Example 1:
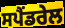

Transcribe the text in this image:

ਸਪੈਂਡਰੇਲ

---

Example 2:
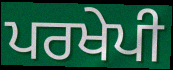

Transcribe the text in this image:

ਪਰਖੇਪੀ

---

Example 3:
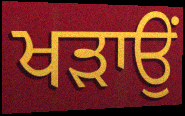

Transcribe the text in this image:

ਖੜਾਉਂ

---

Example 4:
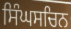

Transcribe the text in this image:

ਸਿੰਘਸਚਿਨ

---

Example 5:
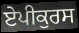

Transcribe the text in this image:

ਏਪੀਕੁਰਸ